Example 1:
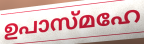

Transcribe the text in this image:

ഉപാസ്മഹേ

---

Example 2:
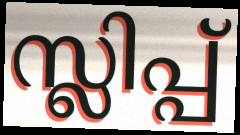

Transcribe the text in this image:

സ്ലിപ്പ്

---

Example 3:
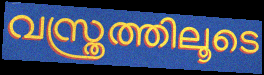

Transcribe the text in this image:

വസ്ത്രത്തിലൂടെ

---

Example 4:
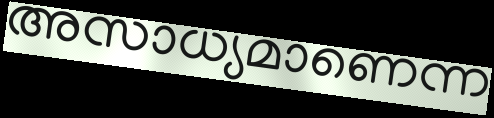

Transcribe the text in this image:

അസാധ്യമാണെന്ന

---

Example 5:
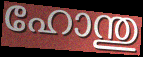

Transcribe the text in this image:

ഹോന്തു